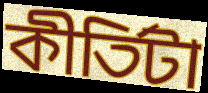
কীর্তিটা